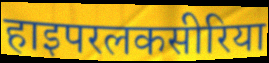
हाइपरलकसीरिया